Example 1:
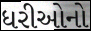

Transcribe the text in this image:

ધરીઓનો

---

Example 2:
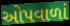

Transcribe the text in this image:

ઓપવાળાં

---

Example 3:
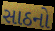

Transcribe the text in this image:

સાઠનો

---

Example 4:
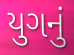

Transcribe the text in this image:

યુગનું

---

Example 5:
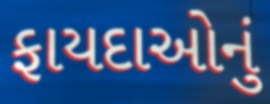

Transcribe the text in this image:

ફાયદાઓનું